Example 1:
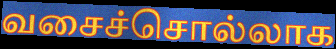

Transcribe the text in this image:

வசைச்சொல்லாக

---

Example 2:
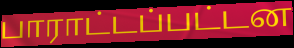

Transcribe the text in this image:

பாராட்டப்பட்டன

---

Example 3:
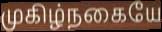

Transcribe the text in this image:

முகிழ்நகையே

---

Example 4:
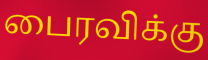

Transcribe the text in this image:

பைரவிக்கு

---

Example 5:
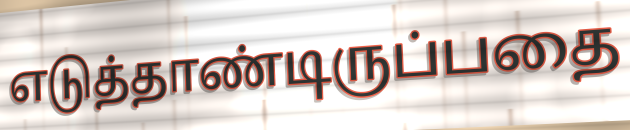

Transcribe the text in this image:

எடுத்தாண்டிருப்பதை